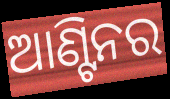
ଆଣ୍ଟିନର